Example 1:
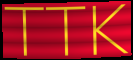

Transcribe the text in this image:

TTK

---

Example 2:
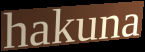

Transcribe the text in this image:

hakuna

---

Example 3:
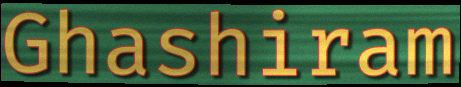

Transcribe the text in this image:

Ghashiram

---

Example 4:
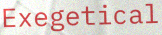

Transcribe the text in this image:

Exegetical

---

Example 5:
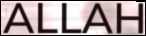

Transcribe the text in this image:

ALLAH